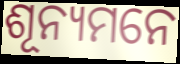
ଶୂନ୍ୟମନେ